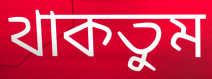
থাকতুম